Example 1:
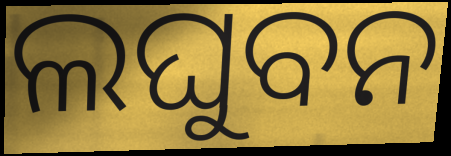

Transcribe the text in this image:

ଲଘୁବନ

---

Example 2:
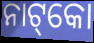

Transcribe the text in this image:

ନାଟ୍‌କୋ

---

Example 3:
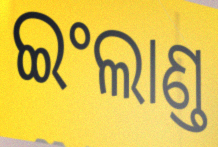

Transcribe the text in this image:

ଇଂଲାଣ୍ଡ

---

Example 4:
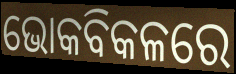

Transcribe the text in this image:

ଭୋକବିକଳରେ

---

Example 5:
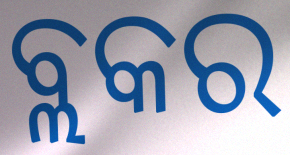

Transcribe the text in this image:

ବ୍ଲକର